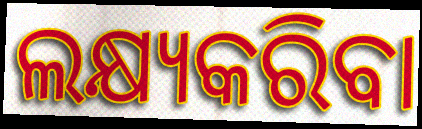
ଲକ୍ଷ୍ୟକରିବା